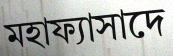
মহাফ্যাসাদে